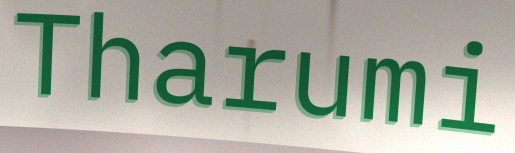
Tharumi